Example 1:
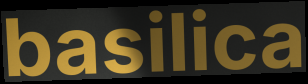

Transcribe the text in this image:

basilica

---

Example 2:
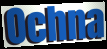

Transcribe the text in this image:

Ochna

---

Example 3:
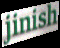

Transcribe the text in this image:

jinish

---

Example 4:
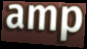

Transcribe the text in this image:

amp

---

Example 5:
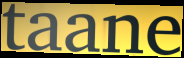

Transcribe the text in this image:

taane